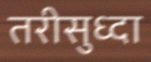
तरीसुध्दा